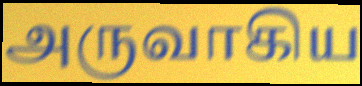
அருவாகிய